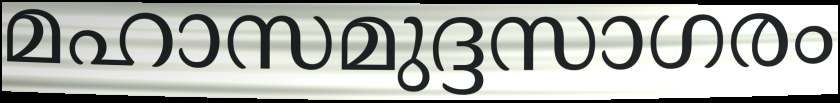
മഹാസമുദ്ദസാഗരം